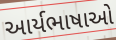
આર્યભાષાઓ